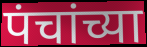
पंचांच्या